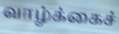
வாழ்க்கைச்